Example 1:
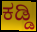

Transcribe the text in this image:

ಕಡ್ಡಿ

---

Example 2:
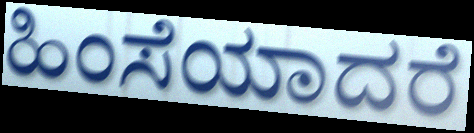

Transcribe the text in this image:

ಹಿಂಸೆಯಾದರೆ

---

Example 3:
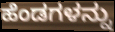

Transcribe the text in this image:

ಹೆಂಡಗಳನ್ನು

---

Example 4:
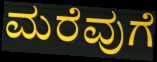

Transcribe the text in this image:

ಮರೆವುಗೆ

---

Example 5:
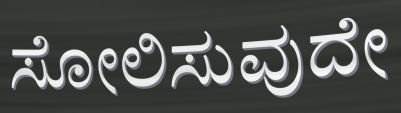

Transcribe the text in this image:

ಸೋಲಿಸುವುದೇ